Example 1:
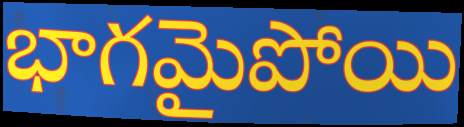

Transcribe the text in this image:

భాగమైపోయి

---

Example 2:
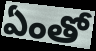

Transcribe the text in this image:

ఏంతో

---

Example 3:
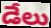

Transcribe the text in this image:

డేలు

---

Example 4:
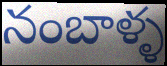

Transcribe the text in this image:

నంబాళ్ళ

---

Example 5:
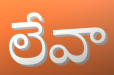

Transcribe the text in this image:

లేవా